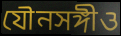
যৌনসঙ্গীও